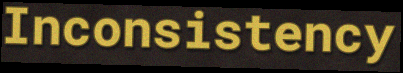
Inconsistency